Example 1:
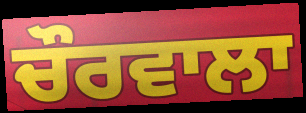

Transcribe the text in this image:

ਚੌਰਵਾਲਾ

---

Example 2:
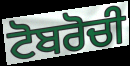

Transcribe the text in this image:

ਟੋਬਰੋਚੀ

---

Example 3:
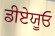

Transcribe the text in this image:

ਡੀਏਯੂਓ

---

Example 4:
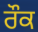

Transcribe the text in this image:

ਰੌਕ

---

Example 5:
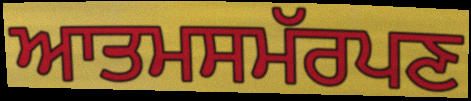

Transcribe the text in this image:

ਆਤਮਸਮੱਰਪਣ